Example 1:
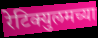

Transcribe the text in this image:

रेटिक्युलमच्या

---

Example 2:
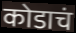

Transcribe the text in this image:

कोडाचं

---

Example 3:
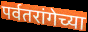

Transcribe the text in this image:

पर्वतरांगेच्या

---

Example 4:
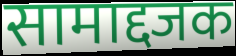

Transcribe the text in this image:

सामाद्दजक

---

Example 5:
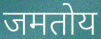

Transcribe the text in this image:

जमतोय